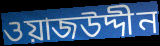
ওয়াজউদ্দীন